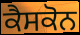
ਕੈਸਕੋਨ